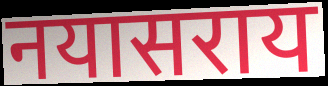
नयासराय